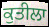
ਕੁਤੀਲਾ